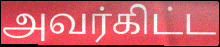
அவர்கிட்ட